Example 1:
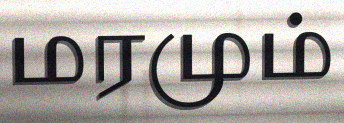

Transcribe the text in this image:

மரமும்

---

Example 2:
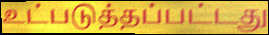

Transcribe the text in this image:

உட்படுத்தப்பட்டது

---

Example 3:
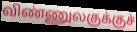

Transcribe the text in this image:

விண்ணுலகுக்குச்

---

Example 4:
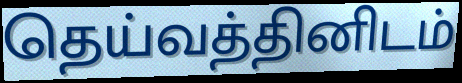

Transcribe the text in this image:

தெய்வத்தினிடம்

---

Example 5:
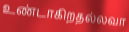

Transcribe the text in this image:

உண்டாகிறதல்லவா